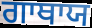
ਗਾਥਾਯ